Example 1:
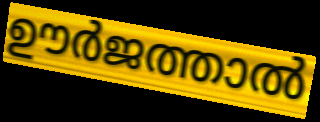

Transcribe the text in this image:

ഊർജത്താൽ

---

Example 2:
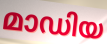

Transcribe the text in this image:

മാഡിയ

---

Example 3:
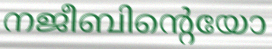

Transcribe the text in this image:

നജീബിന്റെയോ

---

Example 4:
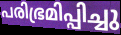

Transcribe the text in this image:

പരിഭ്രമിപ്പിച്ചു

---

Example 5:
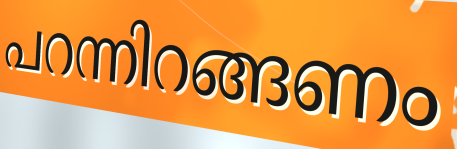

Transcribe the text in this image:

പറന്നിറങ്ങണം